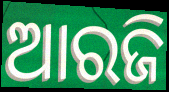
ଆରଜି